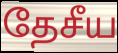
தேசீய